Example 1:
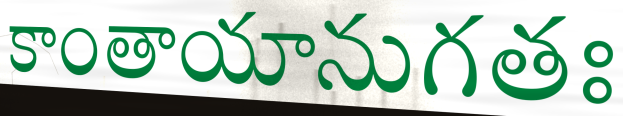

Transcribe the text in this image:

కాంతాయానుగతః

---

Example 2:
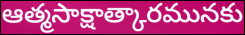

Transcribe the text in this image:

ఆత్మసాక్షాత్కారమునకు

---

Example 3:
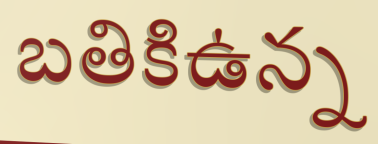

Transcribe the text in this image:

బతికిఉన్న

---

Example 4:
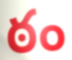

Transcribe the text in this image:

ఠం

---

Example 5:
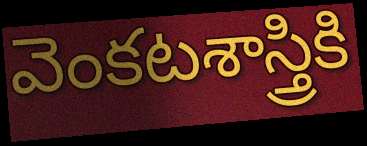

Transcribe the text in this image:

వెంకటశాస్త్రికి